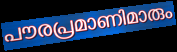
പൗരപ്രമാണിമാരും